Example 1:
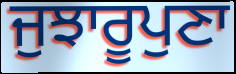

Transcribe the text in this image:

ਜੁਝਾਰੂਪੁਣਾ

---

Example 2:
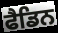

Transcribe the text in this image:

ਫੈਡਿਨ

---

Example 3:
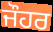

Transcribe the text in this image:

ਜੌਹਰ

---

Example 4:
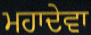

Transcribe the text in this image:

ਮਹਾਦੇਵਾ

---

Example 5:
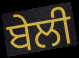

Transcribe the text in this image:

ਬੇਲੀ